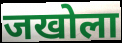
जखोला